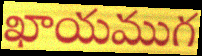
ఖాయముగ